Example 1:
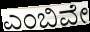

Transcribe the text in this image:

ಎಂಬಿವೇ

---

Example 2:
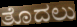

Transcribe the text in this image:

ತೊದಲು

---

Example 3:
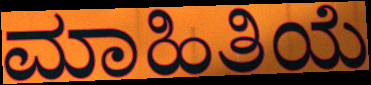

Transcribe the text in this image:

ಮಾಹಿತಿಯೆ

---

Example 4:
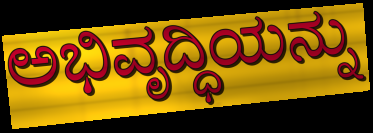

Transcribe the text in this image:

ಅಭಿವೃದ್ಧಿಯನ್ನು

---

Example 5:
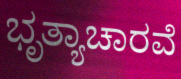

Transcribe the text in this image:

ಭೃತ್ಯಾಚಾರವೆ